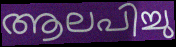
ആലപിച്ചു